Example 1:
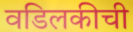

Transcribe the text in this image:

वडिलकीची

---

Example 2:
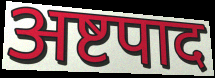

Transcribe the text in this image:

अष्टपाद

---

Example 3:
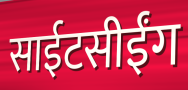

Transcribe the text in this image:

साईटसीईंग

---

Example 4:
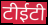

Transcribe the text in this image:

टीईटी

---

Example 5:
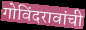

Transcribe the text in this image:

गोविंदरावांची